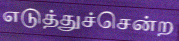
எடுத்துச்சென்ற